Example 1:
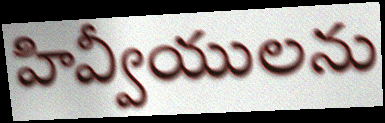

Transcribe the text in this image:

హివ్వీయులను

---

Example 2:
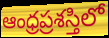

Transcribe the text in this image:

ఆంధ్రప్రశస్తిలో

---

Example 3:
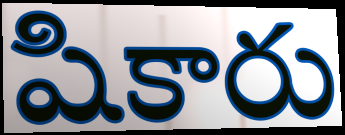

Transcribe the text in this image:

షికారు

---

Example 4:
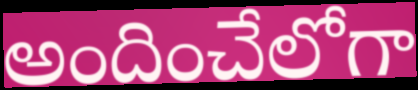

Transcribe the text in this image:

అందించేలోగా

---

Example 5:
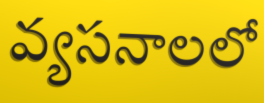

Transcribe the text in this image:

వ్యసనాలలో